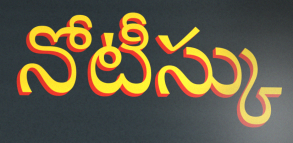
నోటీస్కు